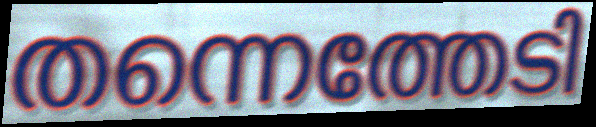
തന്നെത്തേടി